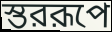
স্তররূপে